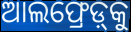
ଆଲଫ୍ରେଡ଼୍‍କୁ